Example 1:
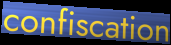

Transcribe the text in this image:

confiscation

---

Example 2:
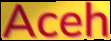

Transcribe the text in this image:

Aceh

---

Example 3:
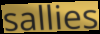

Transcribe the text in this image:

sallies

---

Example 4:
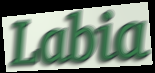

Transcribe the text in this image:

Labia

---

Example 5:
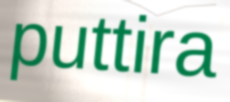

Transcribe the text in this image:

puttira